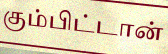
கும்பிட்டான்